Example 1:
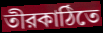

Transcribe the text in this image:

তীরকাঠিতে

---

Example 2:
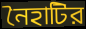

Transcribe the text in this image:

নৈহাটির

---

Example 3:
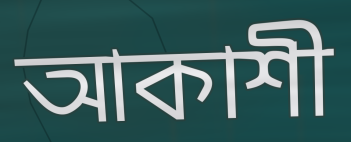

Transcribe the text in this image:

আকাশী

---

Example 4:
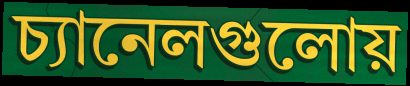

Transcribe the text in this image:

চ্যানেলগুলোয়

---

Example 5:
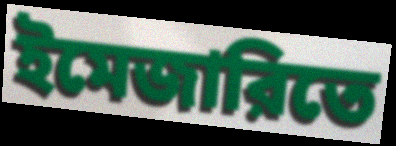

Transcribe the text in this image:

ইমেজারিতে